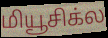
மியூசிக்ல